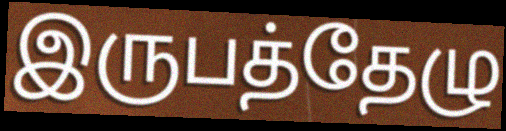
இருபத்தேழு